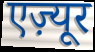
एज़्यूर